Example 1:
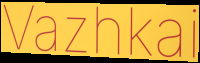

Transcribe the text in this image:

Vazhkai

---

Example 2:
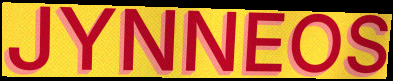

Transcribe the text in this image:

JYNNEOS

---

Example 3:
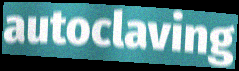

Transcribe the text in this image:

autoclaving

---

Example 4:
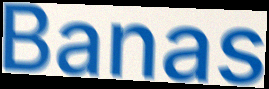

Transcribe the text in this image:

Banas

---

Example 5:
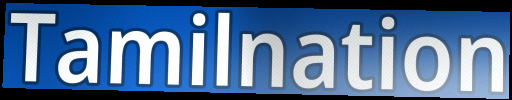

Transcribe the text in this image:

Tamilnation